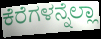
ಕೆರೆಗಳನ್ನೆಲ್ಲಾ